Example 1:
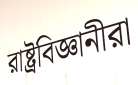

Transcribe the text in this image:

রাষ্ট্রবিজ্ঞানীরা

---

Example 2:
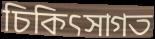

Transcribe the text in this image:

চিকিৎসাগত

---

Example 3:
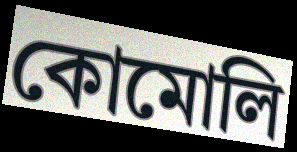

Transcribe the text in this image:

কোমোলি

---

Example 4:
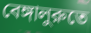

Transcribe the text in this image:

বেঙ্গালুরুতে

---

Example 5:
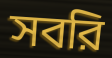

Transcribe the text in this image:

সবরি